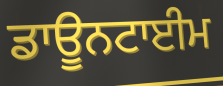
ਡਾਊਨਟਾਈਮ